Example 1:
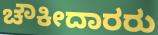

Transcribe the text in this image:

ಚೌಕೀದಾರರು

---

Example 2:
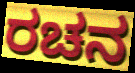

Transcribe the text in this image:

ರಚನ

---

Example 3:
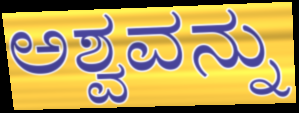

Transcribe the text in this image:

ಅಶ್ವವನ್ನು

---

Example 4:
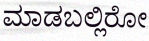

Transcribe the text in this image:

ಮಾಡಬಲ್ಲಿರೋ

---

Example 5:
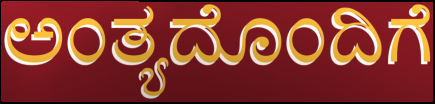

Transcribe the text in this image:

ಅಂತ್ಯದೊಂದಿಗೆ